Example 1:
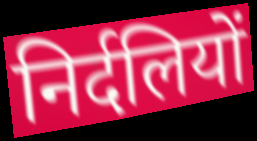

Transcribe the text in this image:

निर्दलियों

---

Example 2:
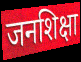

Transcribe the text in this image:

जनशिक्षा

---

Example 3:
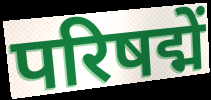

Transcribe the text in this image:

परिषद्में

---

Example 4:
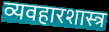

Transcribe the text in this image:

व्यवहारशास्त्र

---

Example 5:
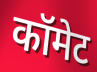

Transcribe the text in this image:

कॉमेट